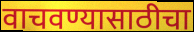
वाचवण्यासाठीचा